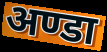
अण्डा